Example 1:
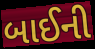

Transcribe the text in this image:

બાઈની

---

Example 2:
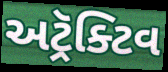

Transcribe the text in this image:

અટ્રૅક્ટિવ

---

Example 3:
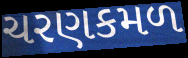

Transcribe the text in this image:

ચરણકમળ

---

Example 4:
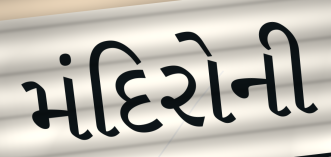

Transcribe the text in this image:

મંદિરોની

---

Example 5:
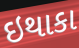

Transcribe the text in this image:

ઇથાકા